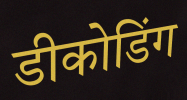
डीकोडिंग